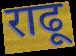
राढू